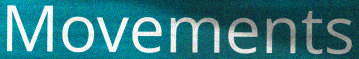
Movements